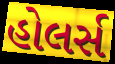
હોલર્સ